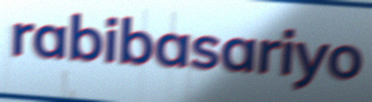
rabibasariyo